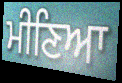
ਮੀਣਿਆ